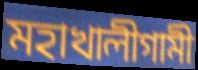
মহাখালীগামী